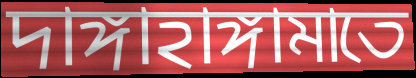
দাঙ্গাহাঙ্গামাতে